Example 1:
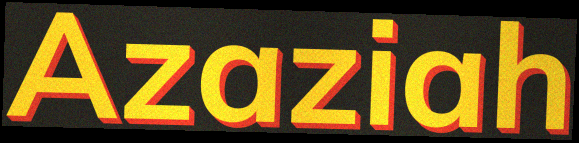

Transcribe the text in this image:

Azaziah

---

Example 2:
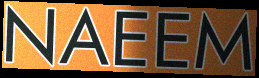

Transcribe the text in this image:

NAEEM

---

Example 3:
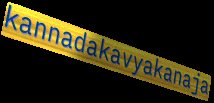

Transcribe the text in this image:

kannadakavyakanaja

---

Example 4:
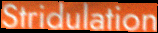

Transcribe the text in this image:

Stridulation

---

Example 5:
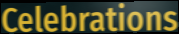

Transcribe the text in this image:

Celebrations